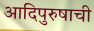
आदिपुरुषाची